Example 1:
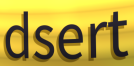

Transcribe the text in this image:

dsert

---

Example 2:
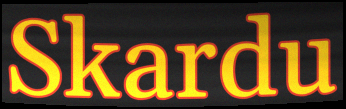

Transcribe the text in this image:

Skardu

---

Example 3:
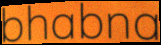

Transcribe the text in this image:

bhabna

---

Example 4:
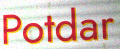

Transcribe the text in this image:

Potdar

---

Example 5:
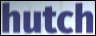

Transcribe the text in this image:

hutch